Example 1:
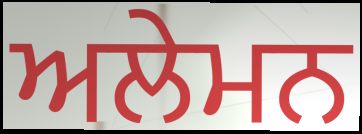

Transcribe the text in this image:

ਅਲੇਮਨ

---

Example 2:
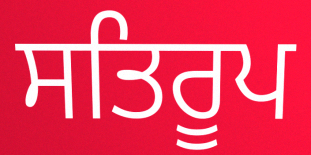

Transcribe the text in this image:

ਸਤਿਰੂਪ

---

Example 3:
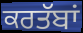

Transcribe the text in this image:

ਕਰਤੱਬਾਂ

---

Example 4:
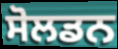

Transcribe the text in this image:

ਸੋਲਡਨ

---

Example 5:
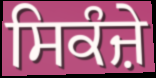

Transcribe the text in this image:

ਸਿਕੰਜ਼ੇ